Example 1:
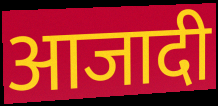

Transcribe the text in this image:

आजादी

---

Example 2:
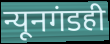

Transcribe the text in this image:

न्यूनगंडही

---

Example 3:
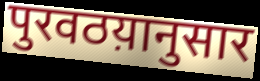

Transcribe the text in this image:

पुरवठय़ानुसार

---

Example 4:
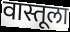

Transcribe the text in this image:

वास्तूला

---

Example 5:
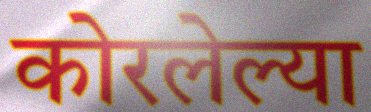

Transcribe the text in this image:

कोरलेल्या